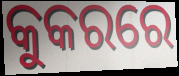
କୁକରରେ